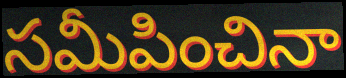
సమీపించినా